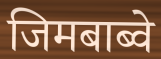
जिमबाब्वे